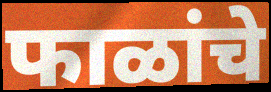
फाळांचे